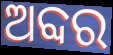
ଅବ୍ଦର